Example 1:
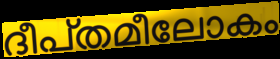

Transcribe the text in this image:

ദീപ്‌തമീലോകം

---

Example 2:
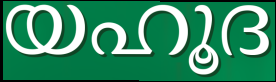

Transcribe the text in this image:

യഹൂദ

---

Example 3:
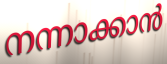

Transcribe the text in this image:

നന്നാക്കാൻ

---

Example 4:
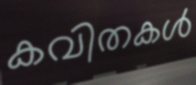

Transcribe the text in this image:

കവിതകൾ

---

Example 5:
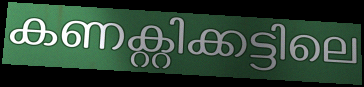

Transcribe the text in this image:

കണക്റ്റിക്കട്ടിലെ